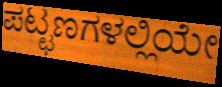
ಪಟ್ಟಣಗಳಲ್ಲಿಯೇ